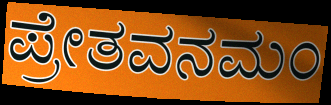
ಪ್ರೇತವನಮಂ